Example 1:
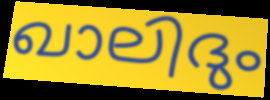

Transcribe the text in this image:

ഖാലിദും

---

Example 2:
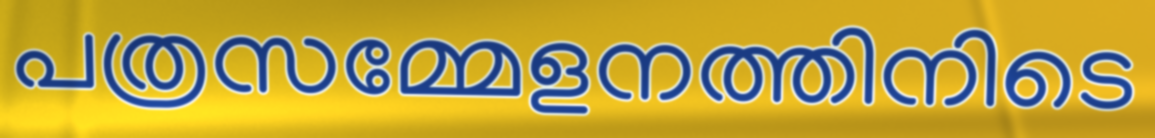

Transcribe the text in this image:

പത്രസമ്മേളനത്തിനിടെ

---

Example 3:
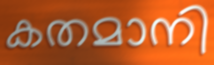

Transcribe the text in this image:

കതമാനി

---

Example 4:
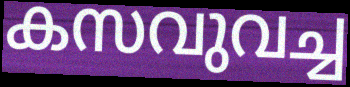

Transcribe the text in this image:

കസവുവച്ച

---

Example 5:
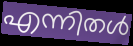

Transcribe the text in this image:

എന്നിതൾ